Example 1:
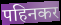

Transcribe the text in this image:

पहिनकर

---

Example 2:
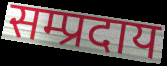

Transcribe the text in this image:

सम्प्रदाय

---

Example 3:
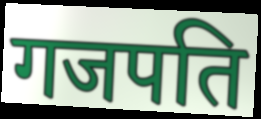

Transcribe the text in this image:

गजपति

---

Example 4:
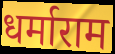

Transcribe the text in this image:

धर्माराम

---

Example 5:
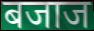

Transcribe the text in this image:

बजाज